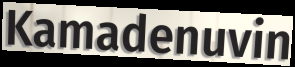
Kamadenuvin